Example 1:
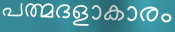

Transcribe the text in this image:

പത്മദളാകാരം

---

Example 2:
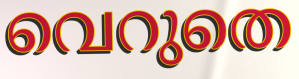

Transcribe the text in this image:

വെറുതെ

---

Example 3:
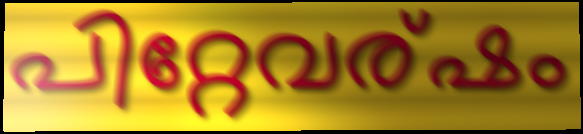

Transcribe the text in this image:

പിറ്റേവര്ഷം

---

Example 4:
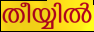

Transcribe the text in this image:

തീയ്യിൽ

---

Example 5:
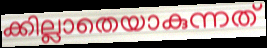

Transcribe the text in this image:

ക്കില്ലാതെയാകുന്നത്